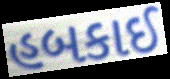
હબકાઈ